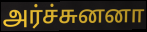
அர்ச்சுனனா